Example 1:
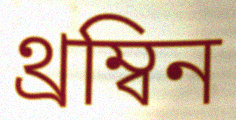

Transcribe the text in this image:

থ্রম্বিন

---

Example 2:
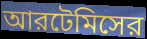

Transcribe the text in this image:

আরটেমিসের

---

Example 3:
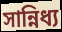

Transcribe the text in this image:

সান্নিধ্য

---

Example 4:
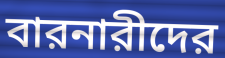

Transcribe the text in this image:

বারনারীদের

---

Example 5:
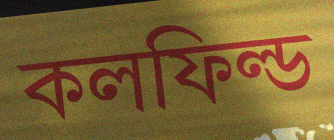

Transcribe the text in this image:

কলফিল্ড